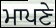
ਮਾਪਣੇ